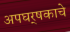
अपघर्षकाचे